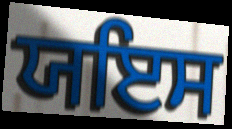
ਯਇਸ